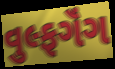
વુલ્ફગૅંગ